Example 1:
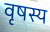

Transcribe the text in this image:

वृषस्य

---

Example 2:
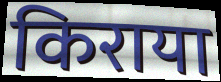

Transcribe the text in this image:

किराया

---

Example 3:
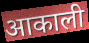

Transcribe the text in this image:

आकाली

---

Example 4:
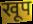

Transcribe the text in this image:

खूप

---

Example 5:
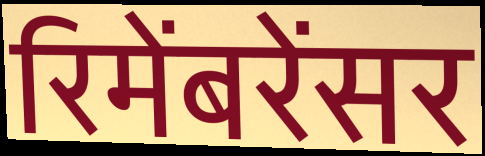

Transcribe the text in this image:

रिमेंबरेंसर